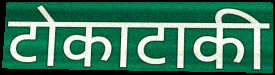
टोकाटाकी